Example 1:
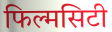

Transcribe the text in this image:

फिल्मसिटी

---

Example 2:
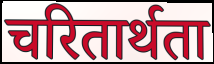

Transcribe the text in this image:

चरितार्थता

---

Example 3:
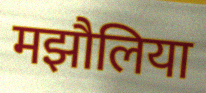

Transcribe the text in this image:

मझौलिया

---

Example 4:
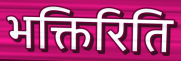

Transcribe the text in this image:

भक्तिरिति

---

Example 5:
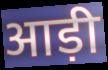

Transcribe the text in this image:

आड़ी